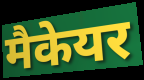
मैकेयर